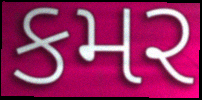
કમર